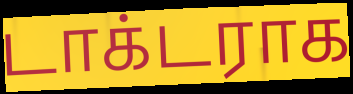
டாக்டராக